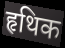
हृथिक